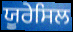
ਯੂਰੇਸਿਲ